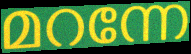
മറന്നേ